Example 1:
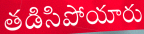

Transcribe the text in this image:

తడిసిపోయారు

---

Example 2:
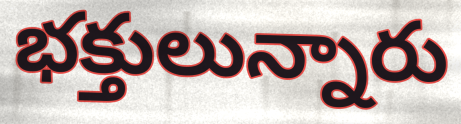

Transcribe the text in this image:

భక్తులున్నారు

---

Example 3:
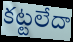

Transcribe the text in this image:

కట్టలేదా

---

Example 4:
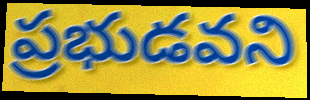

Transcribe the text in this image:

ప్రభుడవని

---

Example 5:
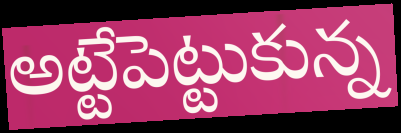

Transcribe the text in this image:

అట్టేపెట్టుకున్న